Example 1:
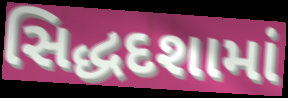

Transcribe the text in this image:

સિદ્ધદશામાં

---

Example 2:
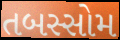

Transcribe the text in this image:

તબસ્સોમ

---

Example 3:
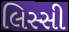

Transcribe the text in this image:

લિસ્સી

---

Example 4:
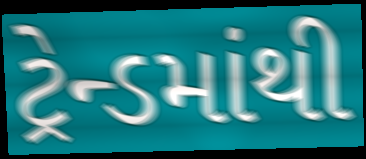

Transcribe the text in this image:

ટ્રેન્ડમાંથી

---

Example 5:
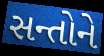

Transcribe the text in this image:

સન્તોને